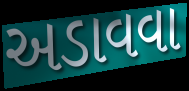
અડાવવા